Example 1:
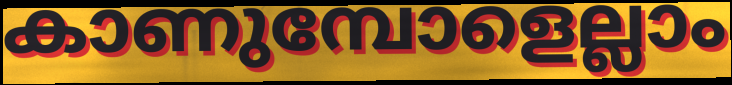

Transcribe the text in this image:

കാണുമ്പോളെല്ലാം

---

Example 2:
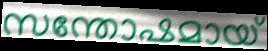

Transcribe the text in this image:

സന്തോഷമായ്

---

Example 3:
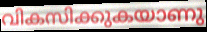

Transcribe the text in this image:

വികസിക്കുകയാണു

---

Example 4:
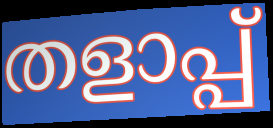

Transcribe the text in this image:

തളാപ്പ്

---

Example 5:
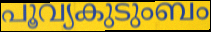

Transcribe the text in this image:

പൂവ്യകുടുംബം